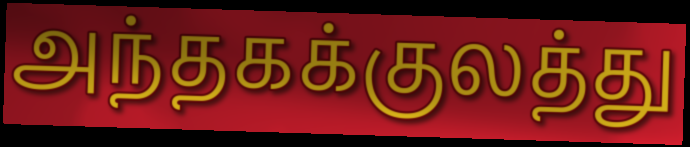
அந்தகக்குலத்து